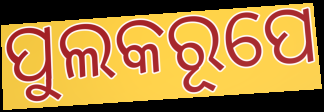
ପୁଲକରୂପେ